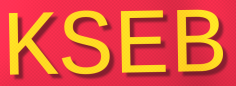
KSEB